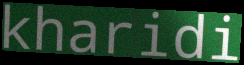
kharidi